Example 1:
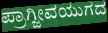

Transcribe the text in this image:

ಪ್ರಾಗ್ಜೀವಯುಗದ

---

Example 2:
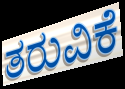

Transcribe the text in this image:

ತರುವಿಕೆ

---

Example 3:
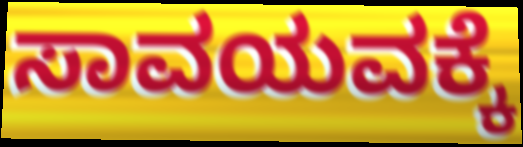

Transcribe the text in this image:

ಸಾವಯವಕ್ಕೆ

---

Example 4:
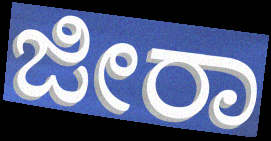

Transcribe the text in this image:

ಜೀರಾ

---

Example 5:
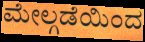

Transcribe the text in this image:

ಮೇಲ್ಗಡೆಯಿಂದ